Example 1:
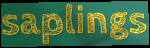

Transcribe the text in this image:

saplings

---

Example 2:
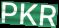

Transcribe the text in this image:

PKR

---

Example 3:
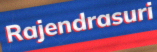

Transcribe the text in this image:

Rajendrasuri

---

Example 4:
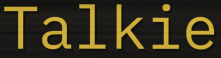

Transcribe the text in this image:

Talkie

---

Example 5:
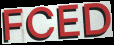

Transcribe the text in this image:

FCED